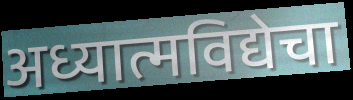
अध्यात्मविद्येचा